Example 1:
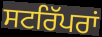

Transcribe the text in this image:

ਸਟਰਿੱਪਰਾਂ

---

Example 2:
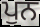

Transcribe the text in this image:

ਪੁਨ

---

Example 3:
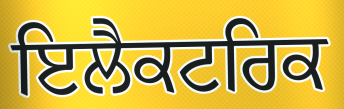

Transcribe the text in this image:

ਇਲੈਕਟਰਿਕ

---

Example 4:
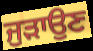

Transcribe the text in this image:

ਜੁੜਾਉਣ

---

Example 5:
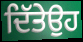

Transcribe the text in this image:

ਦਿੱਤੇਉਹ